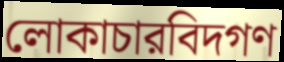
লোকাচারবিদগণ